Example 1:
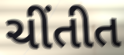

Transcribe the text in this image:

ચીંતીત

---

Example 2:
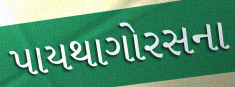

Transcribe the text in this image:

પાયથાગોરસના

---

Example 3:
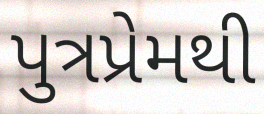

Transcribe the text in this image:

પુત્રપ્રેમથી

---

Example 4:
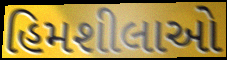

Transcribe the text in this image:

હિમશીલાઓ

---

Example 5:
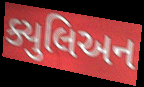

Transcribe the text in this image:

ક્યુલિઅન